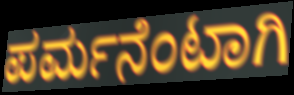
ಪರ್ಮನೆಂಟಾಗಿ